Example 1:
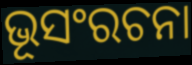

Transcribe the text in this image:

ଭୂସଂରଚନା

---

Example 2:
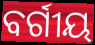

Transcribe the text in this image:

ବର୍ଗୀୟ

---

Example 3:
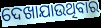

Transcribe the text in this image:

ଦେଖାଯାଉଥିବାର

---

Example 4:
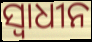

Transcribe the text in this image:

ସ୍ବାଧୀନ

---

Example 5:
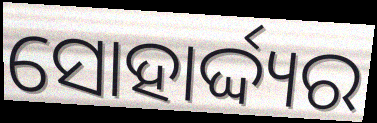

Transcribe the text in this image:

ସୋହାର୍ଦ୍ଦ୍ୟର